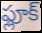
ఫ్లూక్